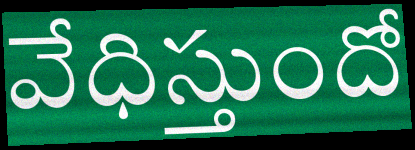
వేధిస్తుందో